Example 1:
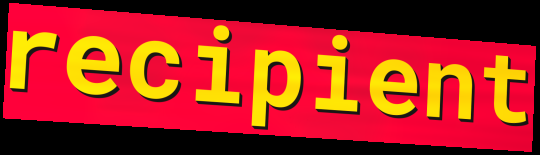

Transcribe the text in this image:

recipient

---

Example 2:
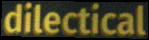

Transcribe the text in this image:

dilectical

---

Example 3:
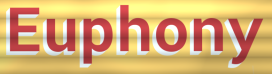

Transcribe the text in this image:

Euphony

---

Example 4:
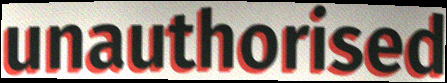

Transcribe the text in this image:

unauthorised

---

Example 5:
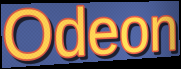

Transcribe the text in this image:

Odeon